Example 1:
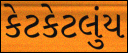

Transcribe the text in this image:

કેટકેટલુંય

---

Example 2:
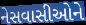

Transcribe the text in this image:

નેસવાસીઓને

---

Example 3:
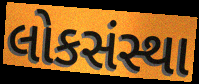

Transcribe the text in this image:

લોકસંસ્થા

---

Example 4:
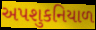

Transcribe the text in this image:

અપશુકનિયાળ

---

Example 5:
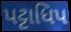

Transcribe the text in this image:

પટ્ટાધિપ